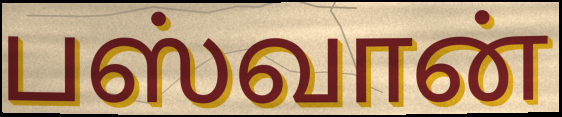
பஸ்வான்